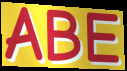
ABE